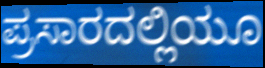
ಪ್ರಸಾರದಲ್ಲಿಯೂ